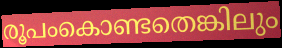
രൂപംകൊണ്ടതെങ്കിലും